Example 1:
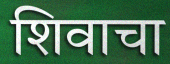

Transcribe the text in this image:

शिवाचा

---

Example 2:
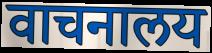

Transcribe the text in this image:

वाचनालय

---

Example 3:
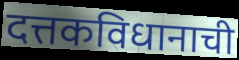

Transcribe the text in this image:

दत्तकविधानाची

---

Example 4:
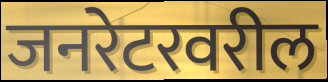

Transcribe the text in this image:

जनरेटरवरील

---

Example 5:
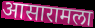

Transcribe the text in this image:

आसारामला